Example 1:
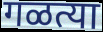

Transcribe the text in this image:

गळत्या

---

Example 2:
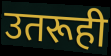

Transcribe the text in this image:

उतरूही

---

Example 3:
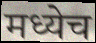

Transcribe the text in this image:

मध्येच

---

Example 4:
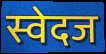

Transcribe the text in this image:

स्वेदज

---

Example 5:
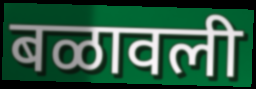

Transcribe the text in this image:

बळावली